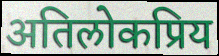
अतिलोकप्रिय